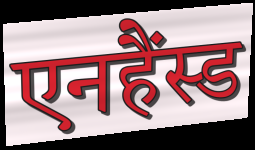
एनहैंस्ड